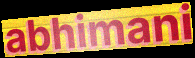
abhimani